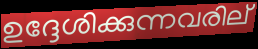
ഉദ്ദേശിക്കുന്നവരില്